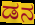
ಡನ